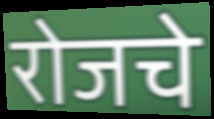
रोजचे